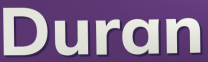
Duran